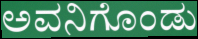
ಅವನಿಗೊಂಡು